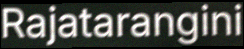
Rajatarangini